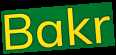
Bakr